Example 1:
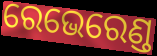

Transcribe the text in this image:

ରେଭେରେଣ୍ଡ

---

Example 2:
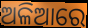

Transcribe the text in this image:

ଅଳିଆରେ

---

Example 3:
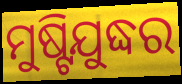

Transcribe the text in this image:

ମୁଷ୍ଟିଯୁଦ୍ଧର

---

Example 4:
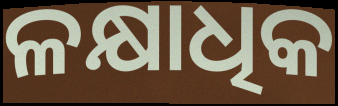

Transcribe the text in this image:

ଳକ୍ଷାଧିକ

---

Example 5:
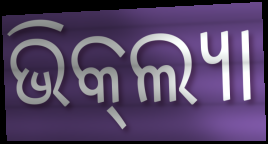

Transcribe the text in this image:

ଭିକ୍‌ଲ୍ୟା